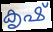
കൃഷ്